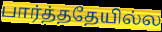
பார்த்ததேயில்ல